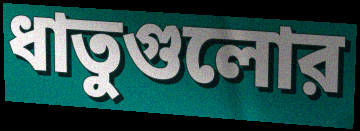
ধাতুগুলোর